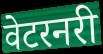
वेटरनरी